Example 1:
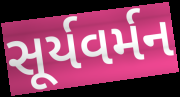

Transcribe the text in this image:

સૂર્યવર્મન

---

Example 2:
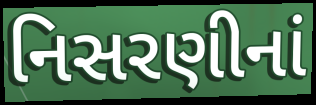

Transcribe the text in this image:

નિસરણીનાં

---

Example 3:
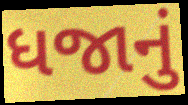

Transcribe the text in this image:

ધજાનું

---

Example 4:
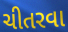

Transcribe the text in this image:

ચીતરવા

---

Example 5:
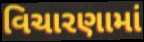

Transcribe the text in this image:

વિચારણામાં